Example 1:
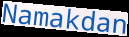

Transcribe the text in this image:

Namakdan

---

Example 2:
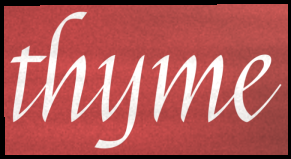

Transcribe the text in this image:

thyme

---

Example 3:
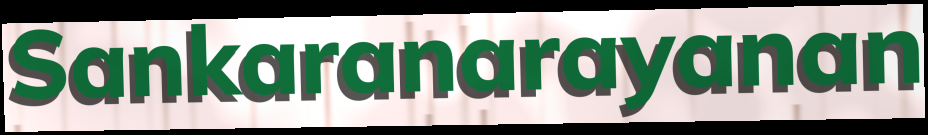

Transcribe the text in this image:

Sankaranarayanan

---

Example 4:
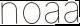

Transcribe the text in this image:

noaa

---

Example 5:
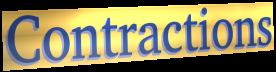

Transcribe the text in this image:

Contractions